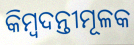
କିମ୍ବଦନ୍ତୀମୂଳକ